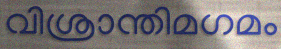
വിശ്രാന്തിമഗമം